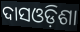
ଦାସଓଡ଼ିଶା